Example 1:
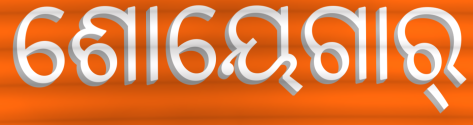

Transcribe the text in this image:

ଶୋୟେଗାର୍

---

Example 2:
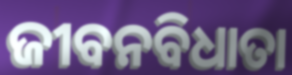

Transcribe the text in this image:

ଜୀବନବିଧାତା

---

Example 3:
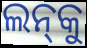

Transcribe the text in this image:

ଲନ୍‌କୁ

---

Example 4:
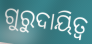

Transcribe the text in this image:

ଗୁରୁଦାୟିତ୍ଵ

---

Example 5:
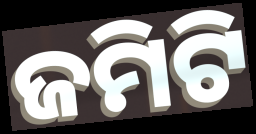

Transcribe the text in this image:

ଜମିଟି